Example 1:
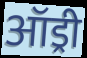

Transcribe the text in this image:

ऑड्री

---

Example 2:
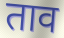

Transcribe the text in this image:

ताव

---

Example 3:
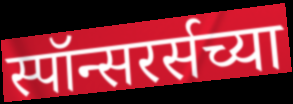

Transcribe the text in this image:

स्पॉन्सरर्सच्या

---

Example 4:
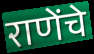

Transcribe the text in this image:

राणेंचे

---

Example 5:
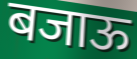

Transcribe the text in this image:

बजाऊ